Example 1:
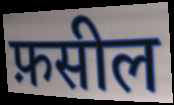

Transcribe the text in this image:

फ़सील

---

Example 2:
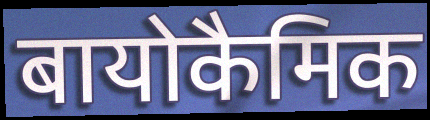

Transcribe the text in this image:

बायोकैमिक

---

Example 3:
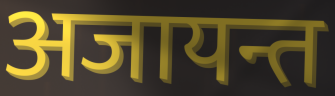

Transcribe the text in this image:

अजायन्त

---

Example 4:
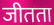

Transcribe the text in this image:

जीतता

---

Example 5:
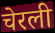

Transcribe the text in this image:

चेरली